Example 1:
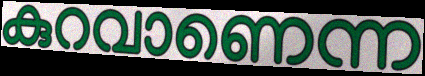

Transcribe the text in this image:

കുറവാണെന്ന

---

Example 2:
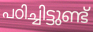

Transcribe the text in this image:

പഠിച്ചിട്ടുണ്ട്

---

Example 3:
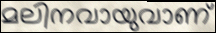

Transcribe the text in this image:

മലിനവായുവാണ്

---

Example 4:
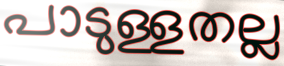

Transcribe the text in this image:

പാടുള്ളതല്ല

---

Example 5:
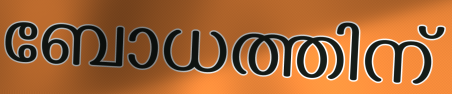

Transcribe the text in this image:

ബോധത്തിന്